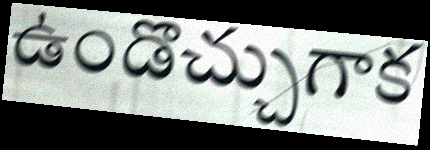
ఉండొచ్చుగాక